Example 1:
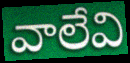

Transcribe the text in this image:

వాలేవి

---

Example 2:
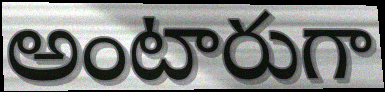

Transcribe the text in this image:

అంటారుగా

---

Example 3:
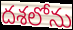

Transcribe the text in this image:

దశలోను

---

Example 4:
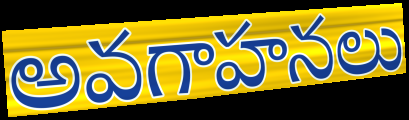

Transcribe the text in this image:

అవగాహనలు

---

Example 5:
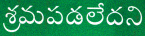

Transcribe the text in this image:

శ్రమపడలేదని